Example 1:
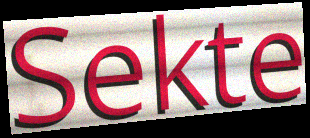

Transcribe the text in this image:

Sekte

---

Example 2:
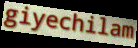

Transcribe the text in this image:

giyechilam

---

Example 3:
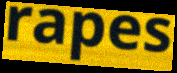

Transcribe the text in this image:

rapes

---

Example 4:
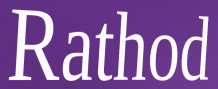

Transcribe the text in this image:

Rathod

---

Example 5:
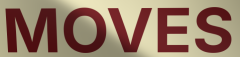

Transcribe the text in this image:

MOVES